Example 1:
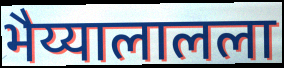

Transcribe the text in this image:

भैय्यालालला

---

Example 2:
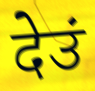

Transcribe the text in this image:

देउं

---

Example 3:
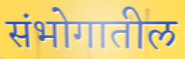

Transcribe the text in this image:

संभोगातील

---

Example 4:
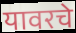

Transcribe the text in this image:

यावरचे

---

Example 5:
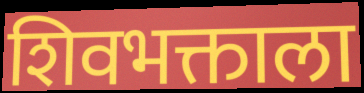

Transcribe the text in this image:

शिवभक्ताला